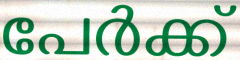
പേർക്ക്